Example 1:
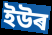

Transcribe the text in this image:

ইউৰ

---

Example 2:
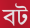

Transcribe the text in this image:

বট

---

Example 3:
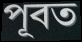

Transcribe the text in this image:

পূবত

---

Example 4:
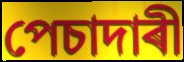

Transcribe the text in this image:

পেচাদাৰী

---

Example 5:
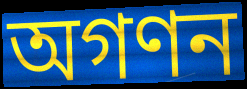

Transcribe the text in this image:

অগণন